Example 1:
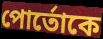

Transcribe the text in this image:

পোর্তোকে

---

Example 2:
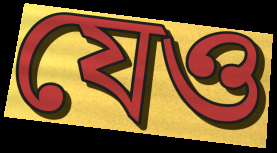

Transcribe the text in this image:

যেও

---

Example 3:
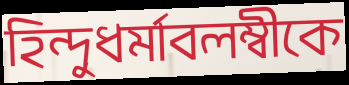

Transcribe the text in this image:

হিন্দুধর্মাবলম্বীকে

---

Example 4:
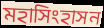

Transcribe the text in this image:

মহাসিংহাসন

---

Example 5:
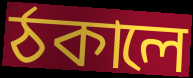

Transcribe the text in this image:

ঠকালে